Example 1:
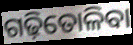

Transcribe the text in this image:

ଗଢ଼ିତୋଳିବା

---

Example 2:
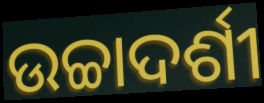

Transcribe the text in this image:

ଉଚ୍ଚାଦର୍ଶୀ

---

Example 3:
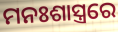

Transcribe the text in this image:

ମନଃଶାସ୍ତ୍ରରେ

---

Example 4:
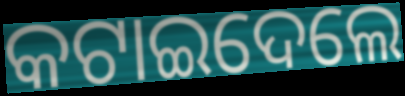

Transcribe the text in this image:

କଟାଇଦେଲେ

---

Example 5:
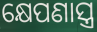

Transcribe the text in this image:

କ୍ଷେପଣାସ୍ତ୍ର